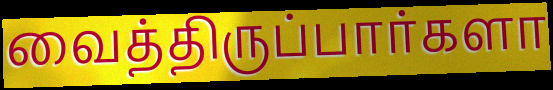
வைத்திருப்பார்களா